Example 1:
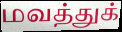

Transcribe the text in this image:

மவத்துக்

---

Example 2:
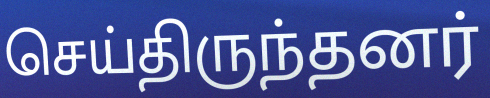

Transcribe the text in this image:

செய்திருந்தனர்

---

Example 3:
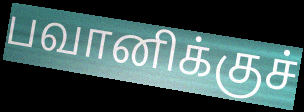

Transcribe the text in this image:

பவானிக்குச்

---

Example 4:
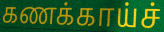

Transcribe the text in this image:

கணக்காய்ச்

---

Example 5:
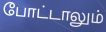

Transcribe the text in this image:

போட்டாலும்